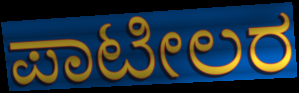
ಪಾಟೀಲರ